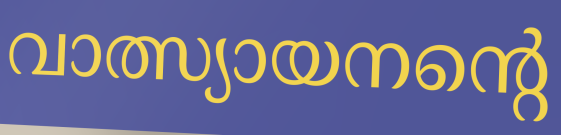
വാത്സ്യായനന്റെ